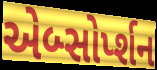
એબ્સોર્પ્શન